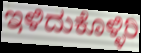
ಇಳಿದುಕೊಳ್ಳಿರಿ